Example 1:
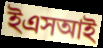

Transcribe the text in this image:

ইএসআই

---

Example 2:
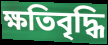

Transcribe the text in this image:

ক্ষতিবৃদ্ধি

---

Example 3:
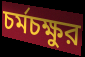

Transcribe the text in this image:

চর্মচক্ষুর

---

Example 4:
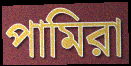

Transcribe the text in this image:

পামিরা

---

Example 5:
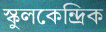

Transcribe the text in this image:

স্কুলকেন্দ্রিক